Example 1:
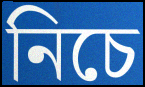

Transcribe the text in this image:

নিচে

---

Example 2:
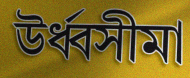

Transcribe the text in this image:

উর্ধ্বসীমা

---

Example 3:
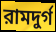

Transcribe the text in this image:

রামদুর্গ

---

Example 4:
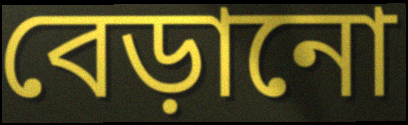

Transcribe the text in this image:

বেড়ানো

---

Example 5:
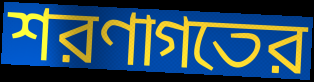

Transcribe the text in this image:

শরণাগতের